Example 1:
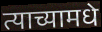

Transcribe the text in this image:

त्याच्यामधे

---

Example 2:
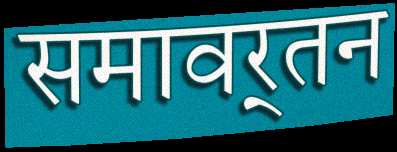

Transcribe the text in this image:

समावर्तन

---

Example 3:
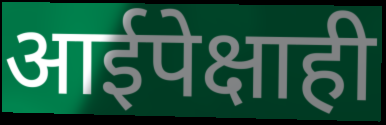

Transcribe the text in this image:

आईपेक्षाही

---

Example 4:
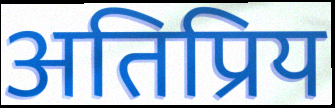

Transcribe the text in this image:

अतिप्रिय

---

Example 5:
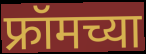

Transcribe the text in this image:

फ्रॉमच्या